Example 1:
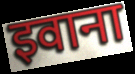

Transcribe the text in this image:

इवाना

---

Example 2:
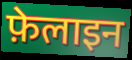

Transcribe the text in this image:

फ़ेलाइन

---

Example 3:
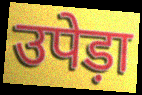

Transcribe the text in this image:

उपेड़ा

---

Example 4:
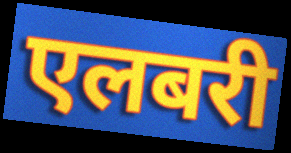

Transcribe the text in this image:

एलबरी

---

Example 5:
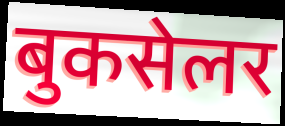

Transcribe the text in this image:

बुकसेलर